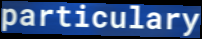
particulary